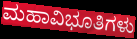
ಮಹಾವಿಭೂತಿಗಳು